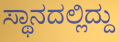
ಸ್ಥಾನದಲ್ಲಿದ್ದು